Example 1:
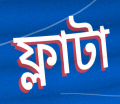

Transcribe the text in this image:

ফ্লাটা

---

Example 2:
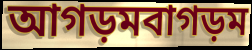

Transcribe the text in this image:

আগড়মবাগড়ম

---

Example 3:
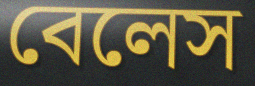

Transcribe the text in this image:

বেলেস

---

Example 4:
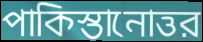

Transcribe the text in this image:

পাকিস্তানোত্তর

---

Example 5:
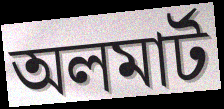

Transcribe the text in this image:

অলমার্ট